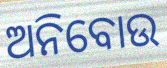
ଅନିବୋଉ